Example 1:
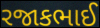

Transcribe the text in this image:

રજાકભાઈ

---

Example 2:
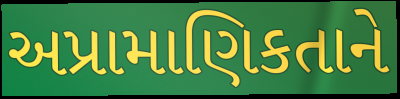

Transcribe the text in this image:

અપ્રામાણિકતાને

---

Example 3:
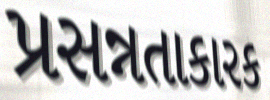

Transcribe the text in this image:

પ્રસન્નતાકારક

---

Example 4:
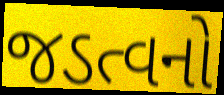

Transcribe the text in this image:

જડત્વનો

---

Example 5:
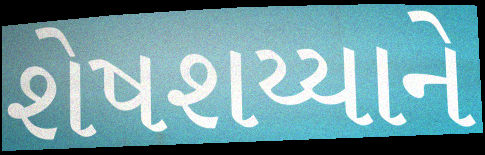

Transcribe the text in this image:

શેષશય્યાને